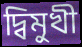
দ্বিমুখী